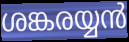
ശങ്കരയ്യൻ